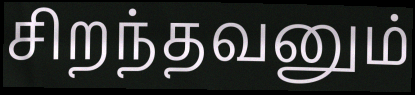
சிறந்தவனும்